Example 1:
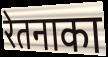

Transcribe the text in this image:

रेतनाका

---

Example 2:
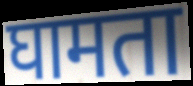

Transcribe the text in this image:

घामता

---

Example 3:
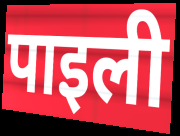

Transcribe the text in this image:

पाइली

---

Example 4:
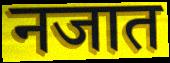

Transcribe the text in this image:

नजात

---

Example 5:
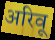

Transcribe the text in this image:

अरिवू